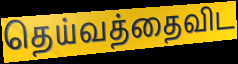
தெய்வத்தைவிட